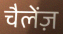
चैलेंज़